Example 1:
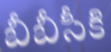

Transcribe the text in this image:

బీబీసీకి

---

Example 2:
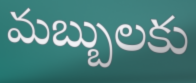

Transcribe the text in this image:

మబ్బులకు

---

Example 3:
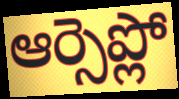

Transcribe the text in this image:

ఆర్సెప్లో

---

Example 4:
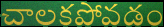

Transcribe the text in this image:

చాలకపోవడం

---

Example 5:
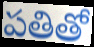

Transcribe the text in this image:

పతితో